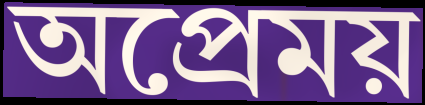
অপ্রেময়